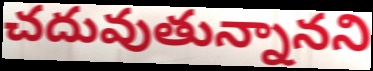
చదువుతున్నానని